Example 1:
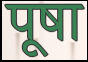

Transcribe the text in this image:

पूषा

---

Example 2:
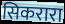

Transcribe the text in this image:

सिकरारा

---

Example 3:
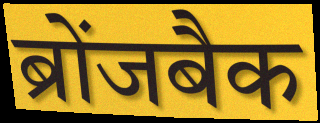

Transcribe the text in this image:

ब्रोंजबैक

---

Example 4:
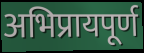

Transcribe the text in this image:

अभिप्रायपूर्ण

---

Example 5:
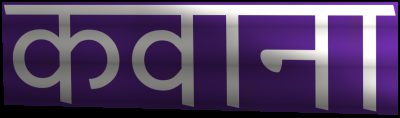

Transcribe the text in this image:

कवाना